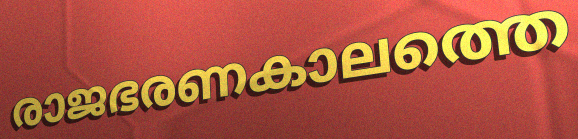
രാജഭരണകാലത്തെ